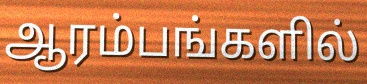
ஆரம்பங்களில்